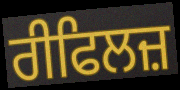
ਰੀਫਿਲਜ਼